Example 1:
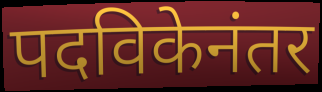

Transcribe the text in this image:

पदविकेनंतर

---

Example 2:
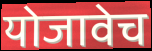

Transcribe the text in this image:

योजावेच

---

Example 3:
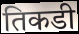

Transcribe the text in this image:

तिकडी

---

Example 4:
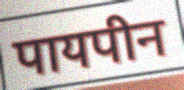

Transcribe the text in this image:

पायपीन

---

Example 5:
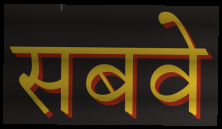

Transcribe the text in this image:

सबवे